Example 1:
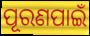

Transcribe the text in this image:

ପୂରଣପାଇଁ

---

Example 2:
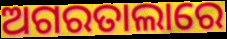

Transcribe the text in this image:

ଅଗରତାଲାରେ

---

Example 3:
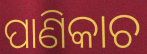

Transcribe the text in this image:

ପାଣିକାଚ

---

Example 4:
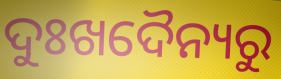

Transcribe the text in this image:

ଦୁଃଖଦୈନ୍ୟରୁ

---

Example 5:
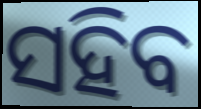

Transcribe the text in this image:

ସହିବ